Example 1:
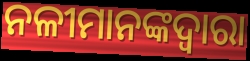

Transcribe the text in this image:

ନଳୀମାନଙ୍କଦ୍ୱାରା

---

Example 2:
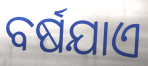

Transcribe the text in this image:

ବର୍ଷଯାଏ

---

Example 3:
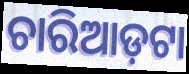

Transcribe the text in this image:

ଚାରିଆଡ଼ଟା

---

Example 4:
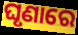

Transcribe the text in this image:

ଘୃଣାରେ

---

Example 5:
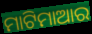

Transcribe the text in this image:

ମାଟିମାଆର